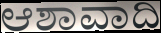
ಆಶಾವಾದಿ